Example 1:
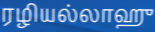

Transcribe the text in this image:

ரழியல்லாஹு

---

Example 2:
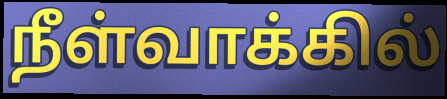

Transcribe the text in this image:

நீள்வாக்கில்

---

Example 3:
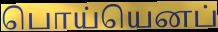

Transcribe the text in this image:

பொய்யெனப்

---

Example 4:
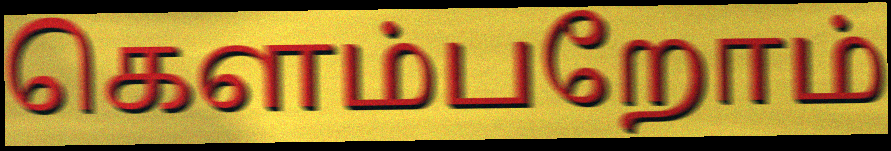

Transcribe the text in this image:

கெளம்பறோம்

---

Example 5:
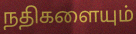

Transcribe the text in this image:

நதிகளையும்